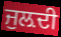
ਜੁਲ਼ਦੀ